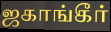
ஜகாங்கீர்